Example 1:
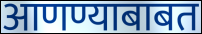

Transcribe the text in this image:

आणण्याबाबत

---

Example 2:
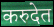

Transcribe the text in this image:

करुदेत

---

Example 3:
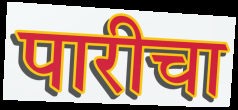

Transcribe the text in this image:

पारीचा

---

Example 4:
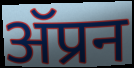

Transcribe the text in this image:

ॲप्रन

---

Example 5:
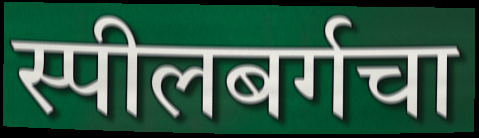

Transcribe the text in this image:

स्पीलबर्गचा